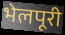
भेलपूरी